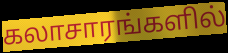
கலாசாரங்களில்